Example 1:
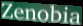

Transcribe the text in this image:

Zenobia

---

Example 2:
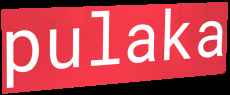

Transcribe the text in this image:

pulaka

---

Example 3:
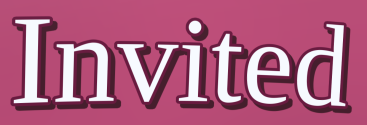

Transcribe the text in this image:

Invited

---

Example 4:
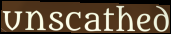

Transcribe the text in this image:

unscathed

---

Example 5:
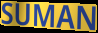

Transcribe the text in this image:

SUMAN